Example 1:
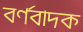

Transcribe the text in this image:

বৰ্ণবাদক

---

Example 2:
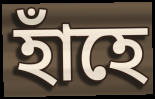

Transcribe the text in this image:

হাঁহে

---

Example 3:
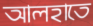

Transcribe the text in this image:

আলহাতে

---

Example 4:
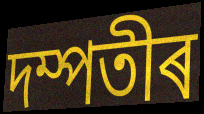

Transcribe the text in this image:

দম্পতীৰ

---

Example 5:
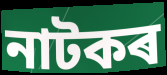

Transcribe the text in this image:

নাটকৰ